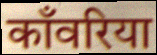
काँवरिया